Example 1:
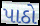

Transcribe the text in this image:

પાઠો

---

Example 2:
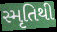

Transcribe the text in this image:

સ્મૃતિથી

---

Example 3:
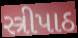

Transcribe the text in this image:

સ્ત્રીપાઠ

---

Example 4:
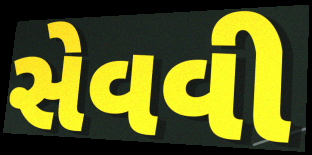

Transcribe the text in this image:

સેવવી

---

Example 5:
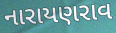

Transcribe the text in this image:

નારાયણરાવ